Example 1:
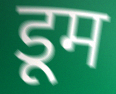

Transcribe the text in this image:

डूम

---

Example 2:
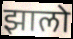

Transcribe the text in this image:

झालो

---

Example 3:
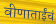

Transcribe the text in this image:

वीणाताईंचं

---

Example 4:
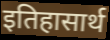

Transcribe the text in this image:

इतिहासार्थ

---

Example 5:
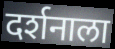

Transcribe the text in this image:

दर्शनाला